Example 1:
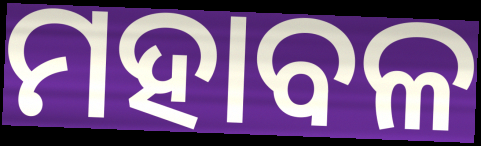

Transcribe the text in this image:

ମହାବଳ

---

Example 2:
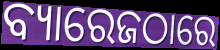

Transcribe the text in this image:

ବ୍ୟାରେଜଠାରେ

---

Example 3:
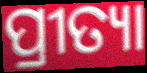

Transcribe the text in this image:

ପ୍ରୀତ୍ୟା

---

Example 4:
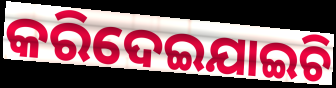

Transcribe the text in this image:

କରିଦେଇଯାଇଚି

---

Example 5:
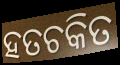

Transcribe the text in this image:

ହତଚକିତ